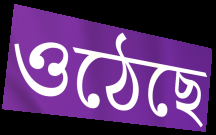
ওঠেছে